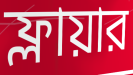
ফ্লায়ার